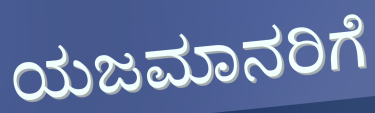
ಯಜಮಾನರಿಗೆ